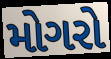
મોગરો